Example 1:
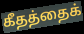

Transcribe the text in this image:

கீதத்தைக்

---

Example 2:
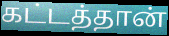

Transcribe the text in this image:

கட்டத்தான்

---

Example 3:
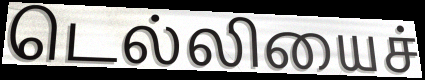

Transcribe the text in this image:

டெல்லியைச்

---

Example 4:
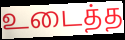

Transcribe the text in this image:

உடைத்த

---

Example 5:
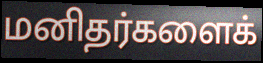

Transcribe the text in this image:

மனிதர்களைக்